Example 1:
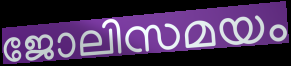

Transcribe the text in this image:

ജോലിസമയം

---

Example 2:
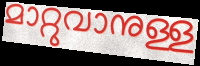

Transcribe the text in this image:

മാറ്റുവാനുള്ള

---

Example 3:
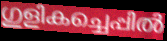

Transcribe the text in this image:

ഗുളികച്ചെപ്പിൽ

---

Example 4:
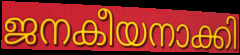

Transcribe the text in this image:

ജനകീയനാക്കി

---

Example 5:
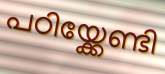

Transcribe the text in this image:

പഠിയ്ക്കേണ്ടി